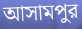
আসামপুর